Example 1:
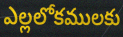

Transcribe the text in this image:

ఎల్లలోకములకు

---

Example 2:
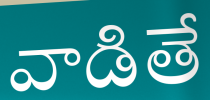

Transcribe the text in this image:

వాడితే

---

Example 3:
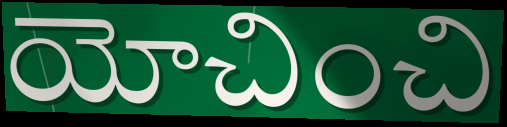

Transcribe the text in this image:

యోచించి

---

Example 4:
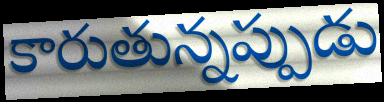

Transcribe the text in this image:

కారుతున్నప్పుడు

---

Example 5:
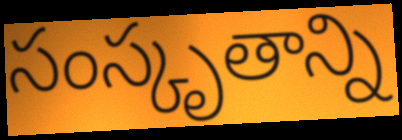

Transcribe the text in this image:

సంస్కృతాన్ని